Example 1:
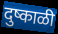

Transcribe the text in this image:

दुष्काळी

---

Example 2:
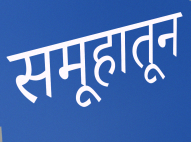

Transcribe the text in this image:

समूहातून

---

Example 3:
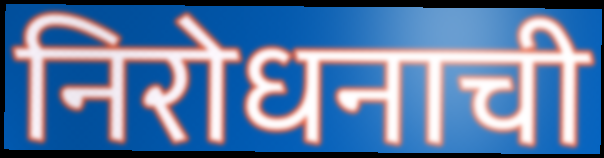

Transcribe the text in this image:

निरोधनाची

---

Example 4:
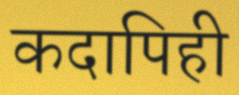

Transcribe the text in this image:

कदापिही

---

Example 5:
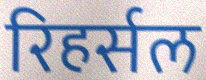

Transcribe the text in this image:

रिहर्सल